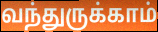
வந்துருக்காம்